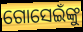
ଗୋସେଇଁଙ୍କୁ